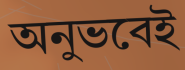
অনুভবেই